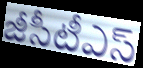
జీసీటీఎస్